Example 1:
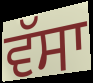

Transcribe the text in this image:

ਵੱਸਾ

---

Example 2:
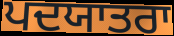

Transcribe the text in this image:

ਪਦਯਾਤਰਾ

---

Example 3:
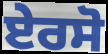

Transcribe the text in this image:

ਏਰਸੋ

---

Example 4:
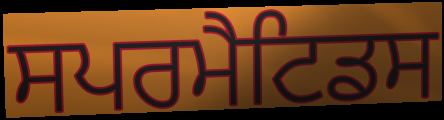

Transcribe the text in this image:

ਸਪਰਮੈਟਿਡਸ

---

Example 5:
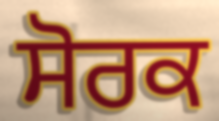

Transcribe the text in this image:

ਸੋਰਕ